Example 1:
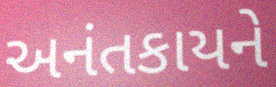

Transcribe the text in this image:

અનંતકાયને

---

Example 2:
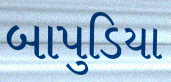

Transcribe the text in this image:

બાપુડિયા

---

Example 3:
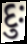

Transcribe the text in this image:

દુઃ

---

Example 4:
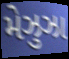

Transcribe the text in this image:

મેઝુઝા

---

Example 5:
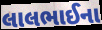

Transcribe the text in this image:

લાલભાઈના